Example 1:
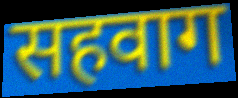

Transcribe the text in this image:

सहवाग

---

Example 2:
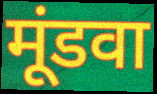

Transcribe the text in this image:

मूंडवा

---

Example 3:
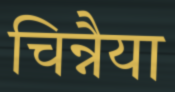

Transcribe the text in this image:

चिन्नैया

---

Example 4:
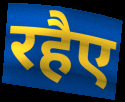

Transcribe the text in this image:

रहैए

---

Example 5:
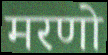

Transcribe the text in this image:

मरणो